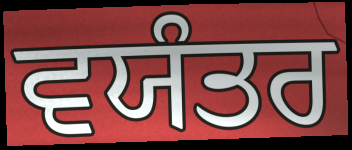
ਵਯੰਤਰ